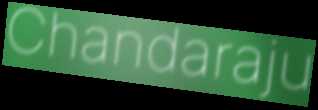
Chandaraju